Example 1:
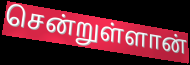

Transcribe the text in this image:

சென்றுள்ளான்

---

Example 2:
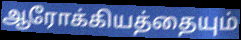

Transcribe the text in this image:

ஆரோக்கியத்தையும்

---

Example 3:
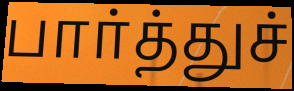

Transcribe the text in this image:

பார்த்துச்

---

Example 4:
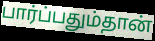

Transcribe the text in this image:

பார்ப்பதும்தான்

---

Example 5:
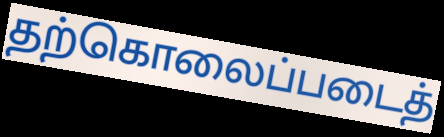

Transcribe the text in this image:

தற்கொலைப்படைத்